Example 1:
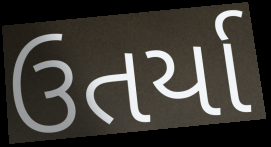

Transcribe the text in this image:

ઉતર્યા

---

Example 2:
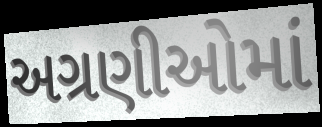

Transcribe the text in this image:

અગ્રણીઓમાં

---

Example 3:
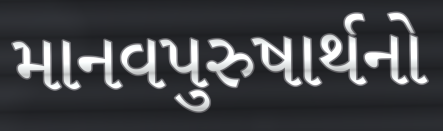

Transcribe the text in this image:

માનવપુરુષાર્થનો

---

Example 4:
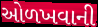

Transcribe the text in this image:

ઓળખવાની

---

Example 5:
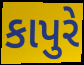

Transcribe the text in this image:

કાપુરે